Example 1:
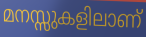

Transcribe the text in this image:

മനസ്സുകളിലാണ്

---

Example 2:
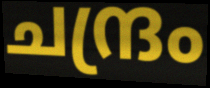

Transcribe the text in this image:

ചന്ദ്രം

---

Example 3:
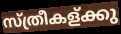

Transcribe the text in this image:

സ്ത്രീകള്ക്കു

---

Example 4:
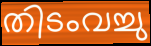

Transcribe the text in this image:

തിടംവച്ചു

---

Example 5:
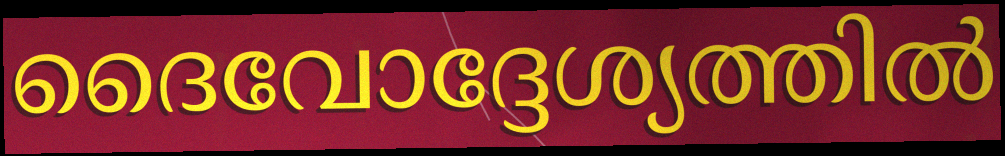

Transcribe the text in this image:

ദൈവോദ്ദേശ്യത്തിൽ